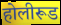
होलीरूड